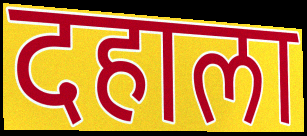
दहाला